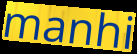
manhi